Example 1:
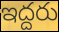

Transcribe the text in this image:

ఇద్దరు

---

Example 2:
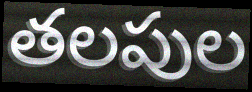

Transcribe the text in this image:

తలపుల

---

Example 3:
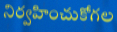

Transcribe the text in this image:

నిర్వహించుకోగల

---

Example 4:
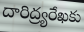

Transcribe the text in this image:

దారిద్ర్యరేఖకు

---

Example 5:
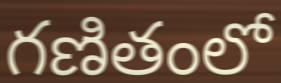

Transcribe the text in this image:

గణితంలో